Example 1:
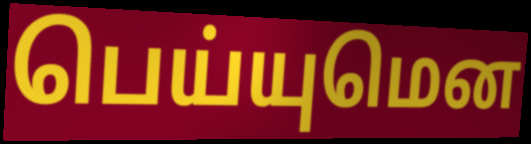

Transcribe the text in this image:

பெய்யுமென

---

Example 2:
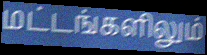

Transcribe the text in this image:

மட்டங்களிலும்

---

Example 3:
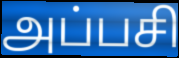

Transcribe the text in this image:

அப்பசி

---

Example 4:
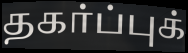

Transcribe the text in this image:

தகர்ப்புக்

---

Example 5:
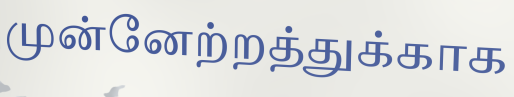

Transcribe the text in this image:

முன்னேற்றத்துக்காக